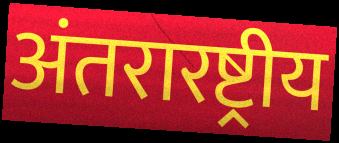
अंतरारष्ट्रीय